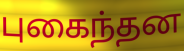
புகைந்தன